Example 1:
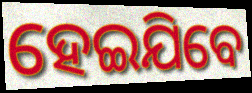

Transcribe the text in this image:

ହେଇଯିବେ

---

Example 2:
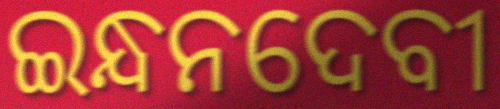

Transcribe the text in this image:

ଇନ୍ଧନଦେବୀ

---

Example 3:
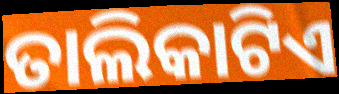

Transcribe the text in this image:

ତାଲିକାଟିଏ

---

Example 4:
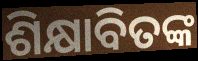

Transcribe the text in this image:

ଶିକ୍ଷାବିତଙ୍କ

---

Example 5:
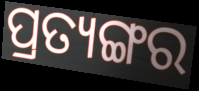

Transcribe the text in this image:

ପ୍ରତ୍ୟଙ୍ଗର